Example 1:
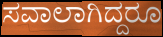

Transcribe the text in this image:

ಸವಾಲಾಗಿದ್ದರೂ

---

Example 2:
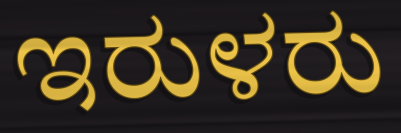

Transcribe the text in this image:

ಇರುಳರು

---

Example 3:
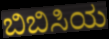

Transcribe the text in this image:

ಬಿಬಿಸಿಯ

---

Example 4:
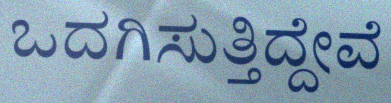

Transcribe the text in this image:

ಒದಗಿಸುತ್ತಿದ್ದೇವೆ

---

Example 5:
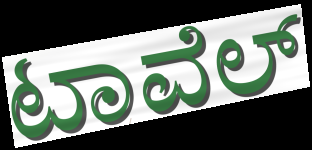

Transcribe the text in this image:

ಟಾವೆಲ್